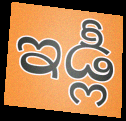
ఇడ్లీ